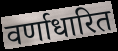
वर्णाधारित